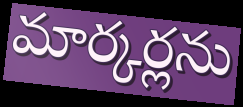
మార్కర్లను